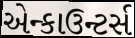
એન્કાઉન્ટર્સ